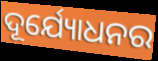
ଦୂର୍ଯ୍ୟୋଧନର